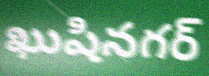
ఖుషినగర్